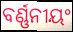
ବର୍ଣ୍ଣନୀୟଂ